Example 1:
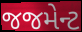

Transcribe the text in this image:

જજમેન્ટ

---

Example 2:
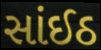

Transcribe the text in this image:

સાંઈઠ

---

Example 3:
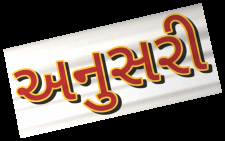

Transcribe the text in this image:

અનુસરી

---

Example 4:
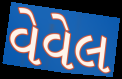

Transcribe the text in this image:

વેવેલ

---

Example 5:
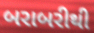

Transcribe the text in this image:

બરાબરીથી